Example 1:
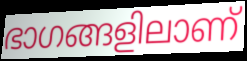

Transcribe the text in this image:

ഭാഗങ്ങളിലാണ്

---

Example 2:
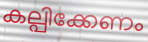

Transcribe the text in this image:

കല്പിക്കേണം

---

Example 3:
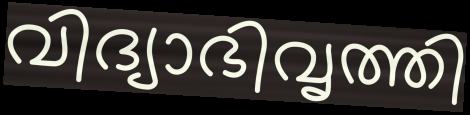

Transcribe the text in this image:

വിദ്യാഭിവൃത്തി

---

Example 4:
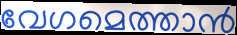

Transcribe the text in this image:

വേഗമെത്താൻ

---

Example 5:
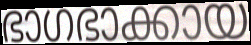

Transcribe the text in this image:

ഭാഗഭാക്കായ